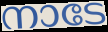
നാടേ